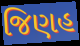
જિણહ